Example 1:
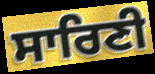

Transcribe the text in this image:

ਸਾਰਿਣੀ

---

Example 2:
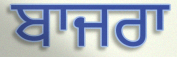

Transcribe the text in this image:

ਬਾਜਰਾ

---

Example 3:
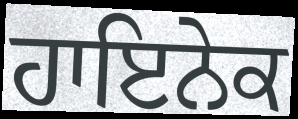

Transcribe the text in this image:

ਹਾਇਨੇਕ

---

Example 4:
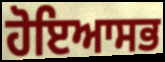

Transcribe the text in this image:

ਹੋਇਆਸਭ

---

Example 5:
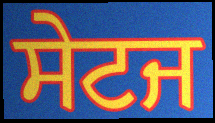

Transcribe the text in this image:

ਸੇਟਜ